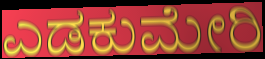
ಎಡಕುಮೇರಿ